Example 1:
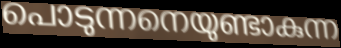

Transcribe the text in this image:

പൊടുന്നനെയുണ്ടാകുന്ന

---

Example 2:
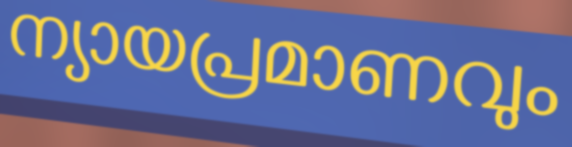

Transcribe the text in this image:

ന്യായപ്രമാണവും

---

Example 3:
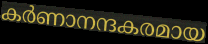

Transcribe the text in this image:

കർണാനന്ദകരമായ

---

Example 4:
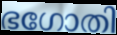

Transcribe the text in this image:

ഭഗോതി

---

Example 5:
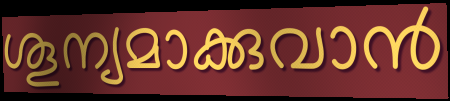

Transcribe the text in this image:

ശൂന്യമാക്കുവാൻ